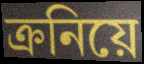
ক্রনিয়ে